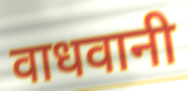
वाधवानी